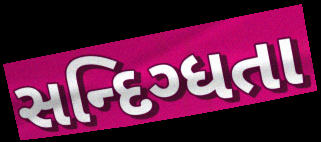
સન્દિગ્ધતા